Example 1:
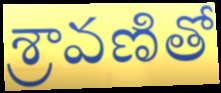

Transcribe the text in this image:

శ్రావణితో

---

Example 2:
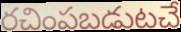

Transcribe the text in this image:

రచింపబడుటచే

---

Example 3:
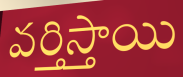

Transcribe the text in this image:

వర్తిస్తాయి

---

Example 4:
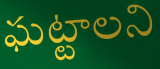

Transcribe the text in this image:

ఘట్టాలని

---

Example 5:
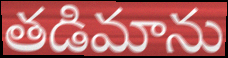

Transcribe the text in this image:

తడిమాను